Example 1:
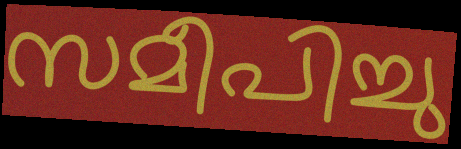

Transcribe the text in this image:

സമീപിച്ചു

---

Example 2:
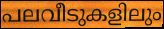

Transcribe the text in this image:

പലവീടുകളിലും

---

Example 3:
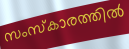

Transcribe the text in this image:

സംസ്കാരത്തിൽ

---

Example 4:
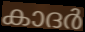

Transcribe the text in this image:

കാദർ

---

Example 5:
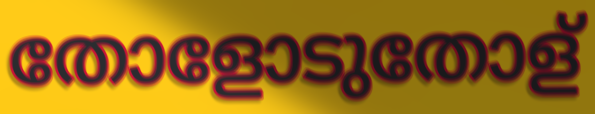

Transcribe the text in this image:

തോളോടുതോള്